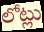
లోట్లు